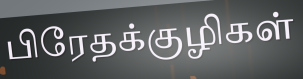
பிரேதக்குழிகள்